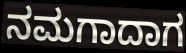
ನಮಗಾದಾಗ